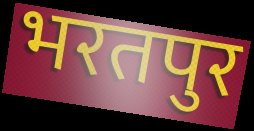
भरतपुर